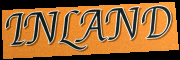
INLAND